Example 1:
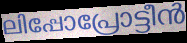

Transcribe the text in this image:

ലിപ്പോപ്രോട്ടീൻ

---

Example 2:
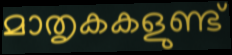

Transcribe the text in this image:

മാതൃകകളുണ്ട്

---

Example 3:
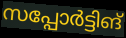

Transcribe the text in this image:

സപ്പോർട്ടിങ്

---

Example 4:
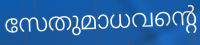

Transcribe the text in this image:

സേതുമാധവന്റെ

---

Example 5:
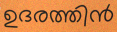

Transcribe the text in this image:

ഉദരത്തിൻ